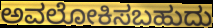
ಅವಲೋಕಿಸಬಹುದು